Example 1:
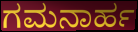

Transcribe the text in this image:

ಗಮನಾರ್ಹ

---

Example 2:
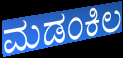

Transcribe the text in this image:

ಮಡಂಕಿಲ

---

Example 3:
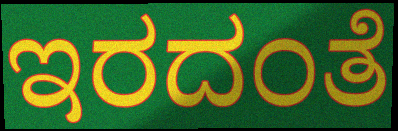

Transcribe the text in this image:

ಇರದಂತೆ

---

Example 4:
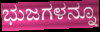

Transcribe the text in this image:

ಭುಜಗಳನ್ನೂ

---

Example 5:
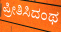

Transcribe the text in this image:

ಪ್ರೀತಿಸಿದಂಥ